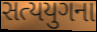
સત્યયુગના